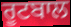
ਰੂਟਬਾਲ